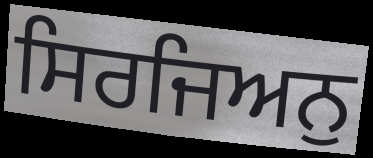
ਸਿਰਜਿਅਨੁ